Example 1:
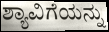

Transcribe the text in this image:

ಶ್ಯಾವಿಗೆಯನ್ನು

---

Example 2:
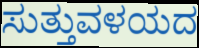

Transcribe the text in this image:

ಸುತ್ತುವಳಯದ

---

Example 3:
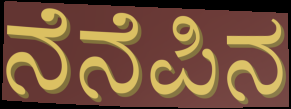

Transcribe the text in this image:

ನೆನೆಪಿನ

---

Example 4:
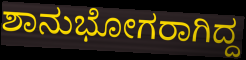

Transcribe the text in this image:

ಶಾನುಭೋಗರಾಗಿದ್ದ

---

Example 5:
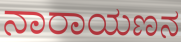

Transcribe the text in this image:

ನಾರಾಯಣನ